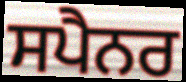
ਸਪੈਨਰ